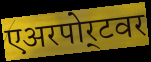
एअरपोर्टवर